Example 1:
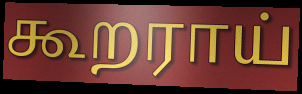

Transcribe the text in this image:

கூறராய்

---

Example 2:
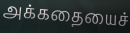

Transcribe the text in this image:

அக்கதையைச்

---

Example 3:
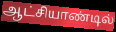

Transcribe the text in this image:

ஆட்சியாண்டில்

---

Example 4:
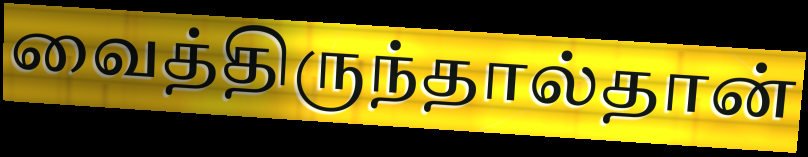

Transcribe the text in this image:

வைத்திருந்தால்தான்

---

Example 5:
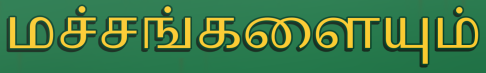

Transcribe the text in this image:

மச்சங்களையும்